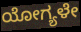
ಯೋಗ್ಯಳೇ